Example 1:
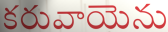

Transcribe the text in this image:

కరువాయెను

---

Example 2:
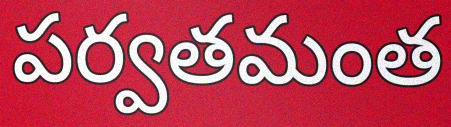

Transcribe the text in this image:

పర్వతమంత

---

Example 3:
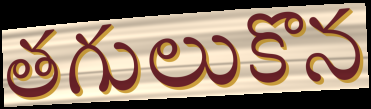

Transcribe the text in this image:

తగులుకొన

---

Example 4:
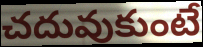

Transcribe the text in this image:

చదువుకుంటే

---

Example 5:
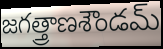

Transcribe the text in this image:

జగత్త్రాణశౌండమ్